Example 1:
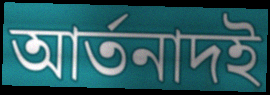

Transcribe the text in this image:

আর্তনাদই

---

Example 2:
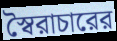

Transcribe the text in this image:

স্বৈরাচারের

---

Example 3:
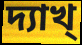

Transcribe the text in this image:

দ্যাখ্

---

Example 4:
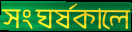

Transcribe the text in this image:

সংঘর্ষকালে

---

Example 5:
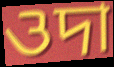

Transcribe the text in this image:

ওদা